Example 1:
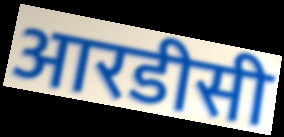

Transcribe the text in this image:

आरडीसी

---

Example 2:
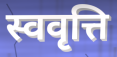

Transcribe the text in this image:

स्ववृत्ति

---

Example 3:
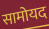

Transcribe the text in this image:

सामोयद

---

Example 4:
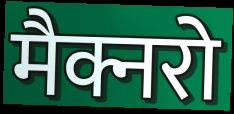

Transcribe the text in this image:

मैक्नरो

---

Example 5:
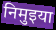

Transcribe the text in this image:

निमुइया